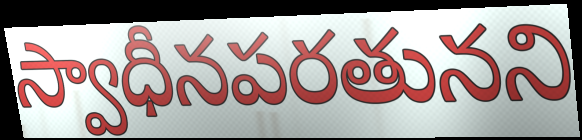
స్వాధీనపరతునని